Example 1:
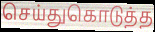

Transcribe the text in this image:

செய்துகொடுத்த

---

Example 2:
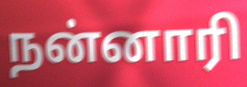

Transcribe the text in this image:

நன்னாரி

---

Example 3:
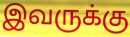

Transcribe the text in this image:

இவருக்கு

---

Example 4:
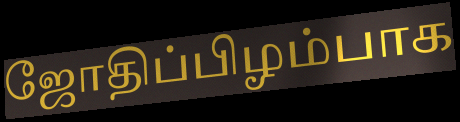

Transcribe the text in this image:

ஜோதிப்பிழம்பாக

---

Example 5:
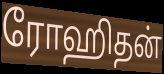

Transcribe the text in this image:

ரோஹிதன்